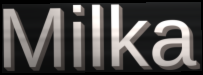
Milka